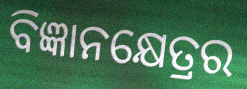
ବିଜ୍ଞାନକ୍ଷେତ୍ରର